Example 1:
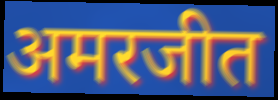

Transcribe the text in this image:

अमरजीत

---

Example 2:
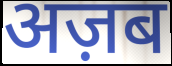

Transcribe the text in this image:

अज़ब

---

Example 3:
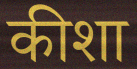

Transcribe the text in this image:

कीशा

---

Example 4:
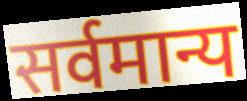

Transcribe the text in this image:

सर्वमान्य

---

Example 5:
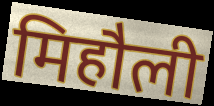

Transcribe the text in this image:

मिहौली